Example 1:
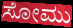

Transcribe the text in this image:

ಸೋಮು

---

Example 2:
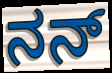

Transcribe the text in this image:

ನನ್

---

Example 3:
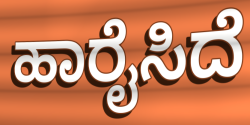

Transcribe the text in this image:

ಹಾರೈಸಿದೆ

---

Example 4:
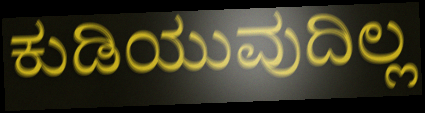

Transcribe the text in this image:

ಕುಡಿಯುವುದಿಲ್ಲ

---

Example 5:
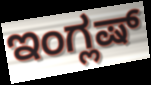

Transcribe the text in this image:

ಇಂಗ್ಲಷ್